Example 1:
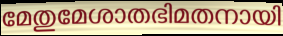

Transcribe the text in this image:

മേതുമേശാതഭിമതനായി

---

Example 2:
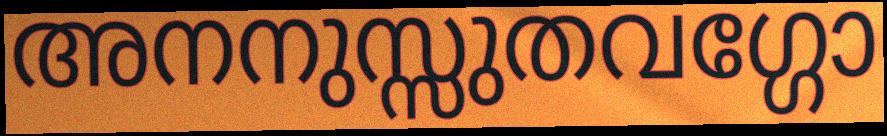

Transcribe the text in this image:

അനനുസ്സുതവഗ്ഗോ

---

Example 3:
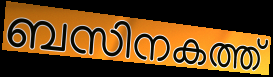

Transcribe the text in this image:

ബസിനകത്ത്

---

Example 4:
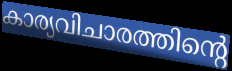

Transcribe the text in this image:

കാര്യവിചാരത്തിന്റെ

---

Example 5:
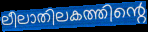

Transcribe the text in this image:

ലീലാതിലകത്തിന്റെ